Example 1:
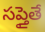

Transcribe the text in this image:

సప్తైతే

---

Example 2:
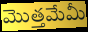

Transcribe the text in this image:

మొత్తమేమీ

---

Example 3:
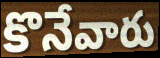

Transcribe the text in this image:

కొనేవారు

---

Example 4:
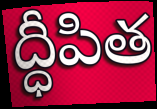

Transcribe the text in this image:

ద్ధీపిత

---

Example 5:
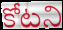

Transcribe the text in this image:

కోటని